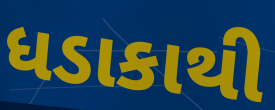
ધડાકાથી